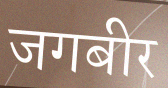
जगबीर